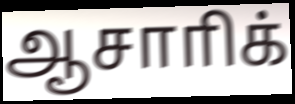
ஆசாரிக்